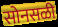
सोनसळी